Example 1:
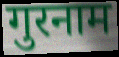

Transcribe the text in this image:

गुरनाम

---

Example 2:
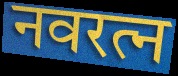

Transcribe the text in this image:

नवरत्‍न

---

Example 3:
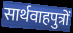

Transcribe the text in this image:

सार्थवाहपुत्रों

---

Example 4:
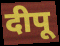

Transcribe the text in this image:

दीपू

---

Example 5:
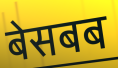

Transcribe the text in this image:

बेसबब